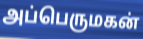
அப்பெருமகன்